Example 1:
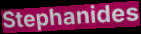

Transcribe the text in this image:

Stephanides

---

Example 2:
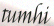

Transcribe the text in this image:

tumhi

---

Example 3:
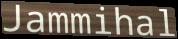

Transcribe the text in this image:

Jammihal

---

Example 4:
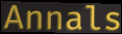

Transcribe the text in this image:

Annals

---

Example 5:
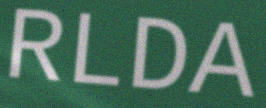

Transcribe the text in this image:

RLDA